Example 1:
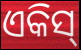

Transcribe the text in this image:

ଏକିସ୍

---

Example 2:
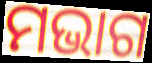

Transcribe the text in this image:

ମଭାଗ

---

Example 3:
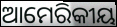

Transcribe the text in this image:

ଆମେରିକୀୟ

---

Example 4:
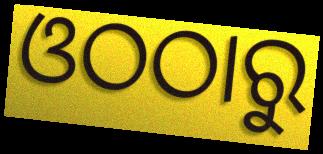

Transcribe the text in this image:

ଓଠଠାରୁ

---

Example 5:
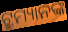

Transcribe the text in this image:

ଟ୍ରୁମ୍ୟାନଙ୍କ